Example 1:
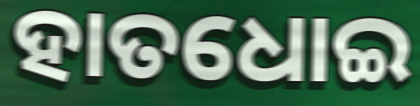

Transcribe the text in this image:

ହାତଧୋଇ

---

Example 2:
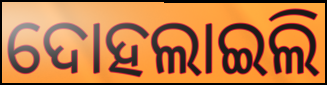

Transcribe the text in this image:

ଦୋହଲାଇଲି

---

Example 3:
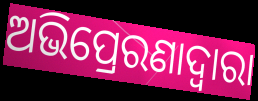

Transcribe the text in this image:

ଅଭିପ୍ରେରଣାଦ୍ୱାରା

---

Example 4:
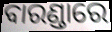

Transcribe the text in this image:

ବାରଣ୍ଡାରେ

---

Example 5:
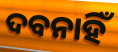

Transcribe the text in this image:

ଦବନାହିଁ